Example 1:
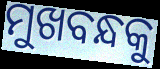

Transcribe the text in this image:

ମୁଖବନ୍ଧକୁ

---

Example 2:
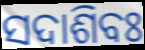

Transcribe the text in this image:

ସଦାଶିବଃ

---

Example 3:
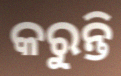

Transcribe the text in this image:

କରୁନ୍ତି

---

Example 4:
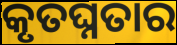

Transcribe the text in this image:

କୃତଘ୍ନତାର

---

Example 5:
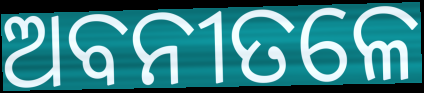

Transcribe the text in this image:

ଅବନୀତଳେ